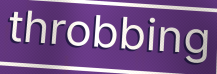
throbbing